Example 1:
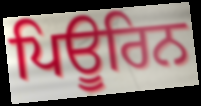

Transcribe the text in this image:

ਪਿਊਰਿਨ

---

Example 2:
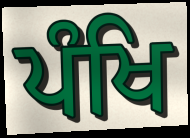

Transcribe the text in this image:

ਪੰਖਿ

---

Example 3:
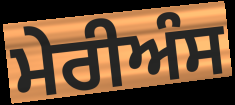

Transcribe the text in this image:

ਮੇਰੀਅੰਸ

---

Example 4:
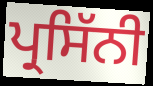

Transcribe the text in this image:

ਪ੍ਰਸਿੱਨੀ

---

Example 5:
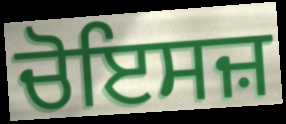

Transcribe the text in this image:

ਚੋਇਸਜ਼